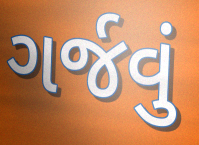
ગર્જવું